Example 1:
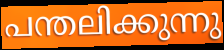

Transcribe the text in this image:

പന്തലിക്കുന്നു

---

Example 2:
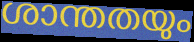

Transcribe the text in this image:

ശാന്തതയും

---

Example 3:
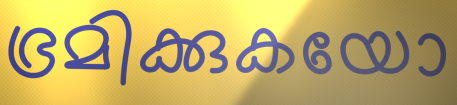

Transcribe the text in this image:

ഭ്രമിക്കുകയോ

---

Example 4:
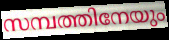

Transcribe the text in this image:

സമ്പത്തിനേയും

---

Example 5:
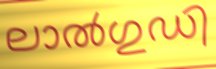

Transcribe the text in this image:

ലാൽഗുഡി